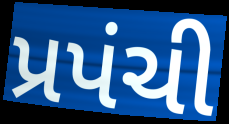
પ્રપંચી